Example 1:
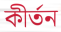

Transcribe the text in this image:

কীৰ্তন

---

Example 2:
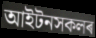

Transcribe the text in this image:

আইটনসকলৰ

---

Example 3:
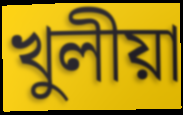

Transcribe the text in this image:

খুলীয়া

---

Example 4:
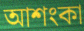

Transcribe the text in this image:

আশংকা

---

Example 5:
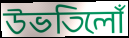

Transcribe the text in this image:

উভতিলোঁ